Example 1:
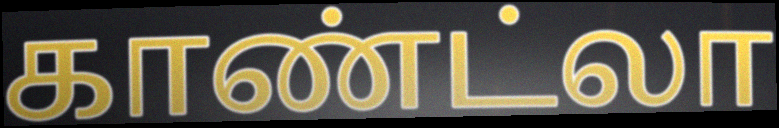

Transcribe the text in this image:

காண்ட்லா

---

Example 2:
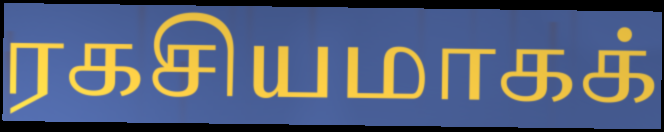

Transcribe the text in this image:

ரகசியமாகக்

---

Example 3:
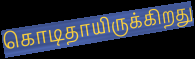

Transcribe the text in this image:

கொடிதாயிருக்கிறது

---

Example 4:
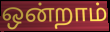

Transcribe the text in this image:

ஒன்றாம்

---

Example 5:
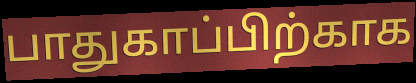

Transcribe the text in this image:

பாதுகாப்பிற்காக